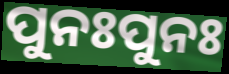
ପୁନଃପୁନଃ